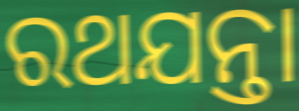
ରଥଯନ୍ତା